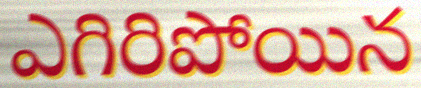
ఎగిరిపోయిన